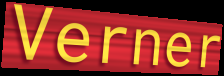
Verner